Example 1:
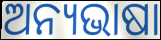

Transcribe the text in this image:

ଅନ୍ୟଭାଷା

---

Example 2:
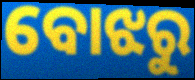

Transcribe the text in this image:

ବୋଝରୁ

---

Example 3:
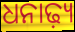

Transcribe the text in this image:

ଧନାଢ଼୍ୟ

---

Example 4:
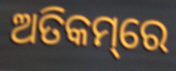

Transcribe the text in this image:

ଅତିକମ୍‌ରେ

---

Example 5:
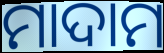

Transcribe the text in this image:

ମାଦାମ